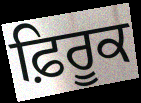
ਫ਼ਿਰੂਕ